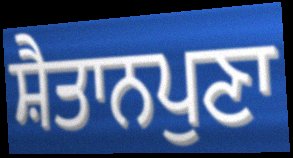
ਸ਼ੈਤਾਨਪੁਣਾ